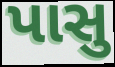
પાસુ